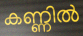
കണ്ണിൽ